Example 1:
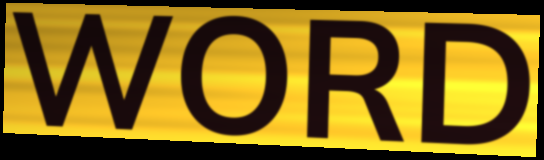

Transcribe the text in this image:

WORD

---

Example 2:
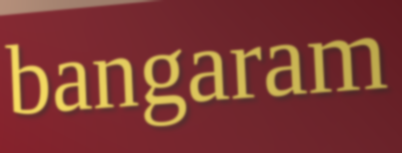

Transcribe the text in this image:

bangaram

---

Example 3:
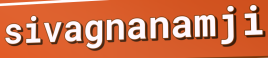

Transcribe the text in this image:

sivagnanamji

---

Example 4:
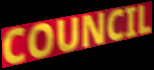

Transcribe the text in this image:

COUNCIL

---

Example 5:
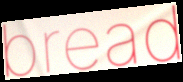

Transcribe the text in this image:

bread